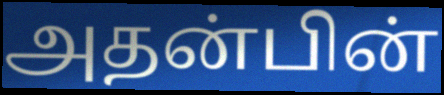
அதன்பின்